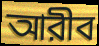
আরীব